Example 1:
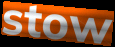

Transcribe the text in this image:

stow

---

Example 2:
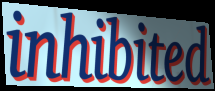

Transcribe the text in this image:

inhibited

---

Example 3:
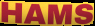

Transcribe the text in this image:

HAMS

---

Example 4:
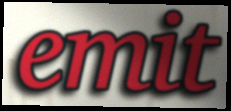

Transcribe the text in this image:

emit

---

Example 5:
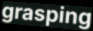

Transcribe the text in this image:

grasping